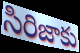
సిరిజాకు